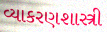
વ્યાકરણશાસ્ત્રી